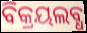
ବିକ୍ରୟଲବ୍ଧ